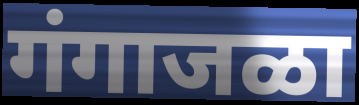
गंगाजळा